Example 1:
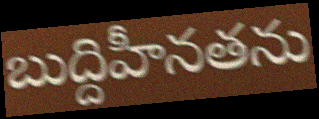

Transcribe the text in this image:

బుద్దిహీనతను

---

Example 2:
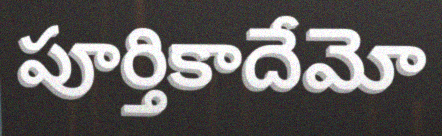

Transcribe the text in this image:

పూర్తికాదేమో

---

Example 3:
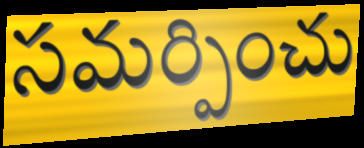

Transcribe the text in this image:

సమర్పించు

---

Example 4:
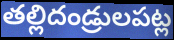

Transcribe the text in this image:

తల్లిదండ్రులపట్ల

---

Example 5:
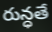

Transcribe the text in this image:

రున్ధతే